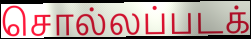
சொல்லப்படக்